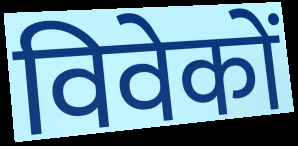
विवेकों